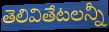
తెలివితేటలన్నీ